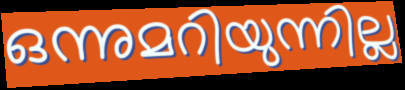
ഒന്നുമറിയുന്നില്ല